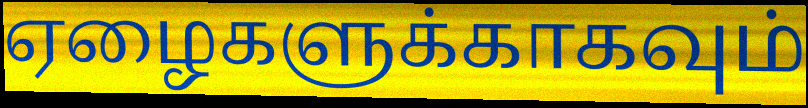
ஏழைகளுக்காகவும்